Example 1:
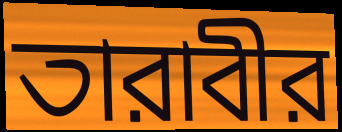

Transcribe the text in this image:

তারাবীর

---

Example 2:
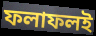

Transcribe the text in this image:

ফলাফলই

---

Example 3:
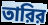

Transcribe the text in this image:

তারির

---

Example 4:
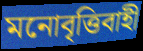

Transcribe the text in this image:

মনোবৃত্তিবাহী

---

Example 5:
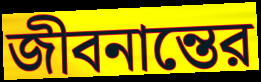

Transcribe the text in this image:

জীবনান্তের